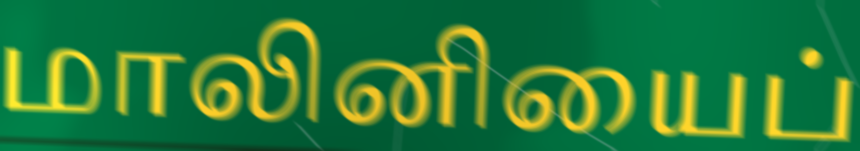
மாலினியைப்